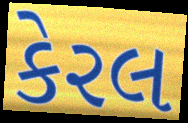
કેરલ